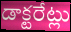
డాక్టరేట్లు